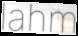
lahm